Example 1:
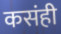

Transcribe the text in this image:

कसंही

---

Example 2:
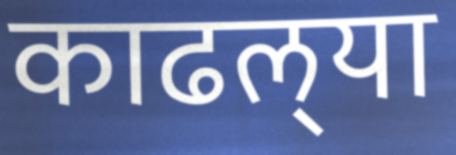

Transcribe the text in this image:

काढल्या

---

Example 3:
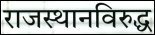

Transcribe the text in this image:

राजस्थानविरुद्ध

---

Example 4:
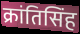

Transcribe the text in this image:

क्रांतिसिंह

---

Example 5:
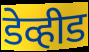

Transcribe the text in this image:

डेव्हीड